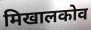
मिखालकोव